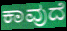
ಕಾವುದೆ